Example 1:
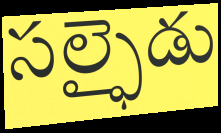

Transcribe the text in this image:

సల్ఫైడు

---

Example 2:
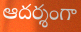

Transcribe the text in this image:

ఆదర్శంగా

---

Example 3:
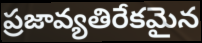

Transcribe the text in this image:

ప్రజావ్యతిరేకమైన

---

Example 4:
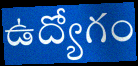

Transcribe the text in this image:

ఉద్యోగం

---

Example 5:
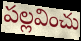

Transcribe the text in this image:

పల్లవించు